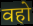
वहो